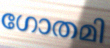
ഗോതമി